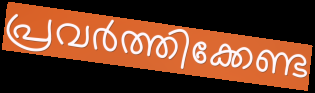
പ്രവർത്തിക്കേണ്ട